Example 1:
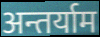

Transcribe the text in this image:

अन्तर्याम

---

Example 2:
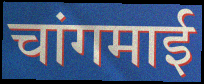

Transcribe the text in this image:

चांगमाई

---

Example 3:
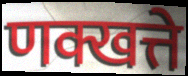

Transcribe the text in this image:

णक्खत्ते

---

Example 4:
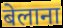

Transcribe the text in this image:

बेलाना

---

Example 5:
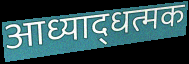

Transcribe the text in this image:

आध्याद्धत्मक